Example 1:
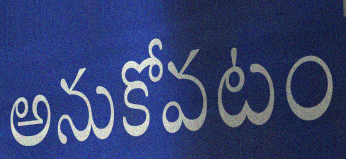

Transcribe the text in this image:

అనుకోవటం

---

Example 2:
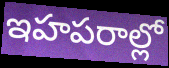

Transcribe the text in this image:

ఇహపరాల్లో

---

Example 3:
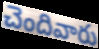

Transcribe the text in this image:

చెందివారు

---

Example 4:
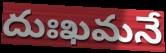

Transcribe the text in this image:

దుఃఖమనే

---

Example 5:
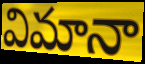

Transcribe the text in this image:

విమానా